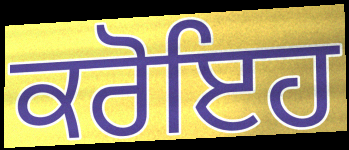
ਕਰੋਇਹ